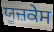
ਯੂਜ਼ਕੇਸ